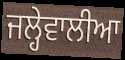
ਜਲ੍ਹੇਵਾਲੀਆ